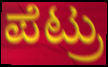
ಪೆಟ್ರು